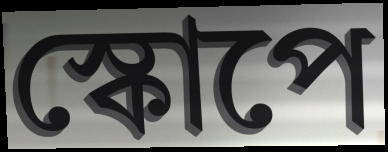
স্কোপে